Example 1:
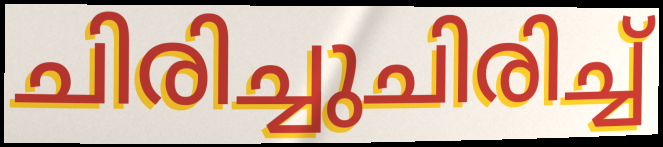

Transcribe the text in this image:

ചിരിച്ചുചിരിച്ച്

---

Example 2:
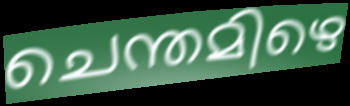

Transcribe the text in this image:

ചെന്തമിഴെ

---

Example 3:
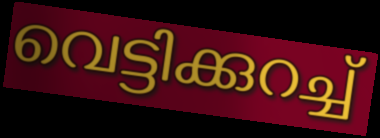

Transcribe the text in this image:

വെട്ടിക്കുറച്ച്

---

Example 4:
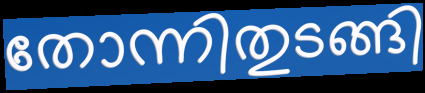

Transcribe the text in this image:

തോന്നിതുടങ്ങി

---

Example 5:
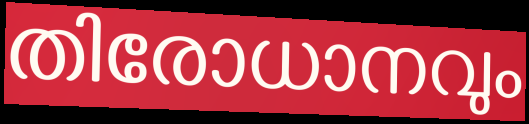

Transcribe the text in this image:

തിരോധാനവും